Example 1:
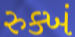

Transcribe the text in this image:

રુક્ખં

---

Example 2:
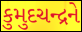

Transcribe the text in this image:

કુમુદચન્દ્રને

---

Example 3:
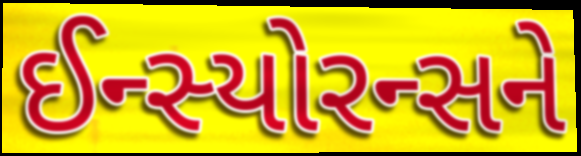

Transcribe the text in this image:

ઈન્સ્યોરન્સને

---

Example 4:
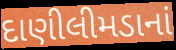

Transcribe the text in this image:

દાણીલીમડાનાં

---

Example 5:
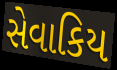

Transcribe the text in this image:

સેવાકિય